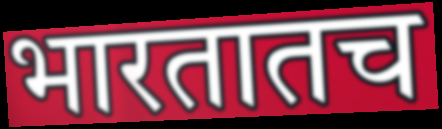
भारतातच